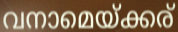
വനാമെയ്ക്കര്